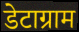
डेटाग्राम